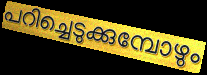
പറിച്ചെടുക്കുമ്പോഴും